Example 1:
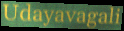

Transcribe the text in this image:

Udayavagali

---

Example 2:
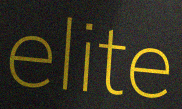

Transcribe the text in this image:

elite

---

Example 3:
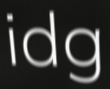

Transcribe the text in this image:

idg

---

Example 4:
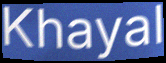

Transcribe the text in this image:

Khayal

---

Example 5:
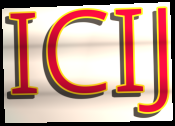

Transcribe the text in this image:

ICIJ